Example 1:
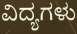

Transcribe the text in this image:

ವಿದ್ಯಗಳು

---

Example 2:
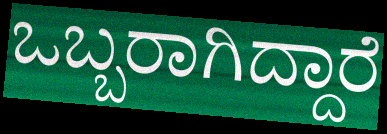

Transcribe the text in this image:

ಒಬ್ಬರಾಗಿದ್ದಾರೆ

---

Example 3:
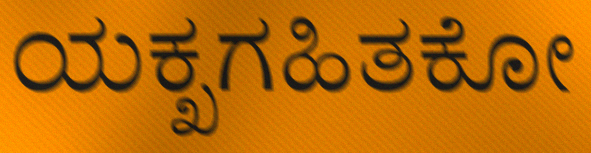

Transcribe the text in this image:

ಯಕ್ಖಗಹಿತಕೋ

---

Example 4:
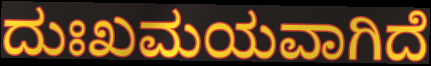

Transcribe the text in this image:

ದುಃಖಮಯವಾಗಿದೆ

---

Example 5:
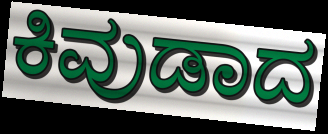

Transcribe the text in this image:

ಕಿವುಡಾದ